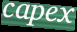
capex